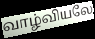
வாழ்வியலே